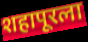
शहापूरला